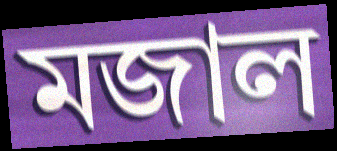
মজাল